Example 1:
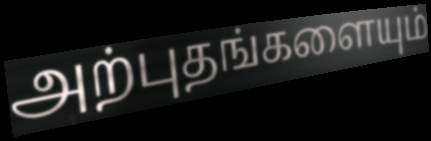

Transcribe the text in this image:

அற்புதங்களையும்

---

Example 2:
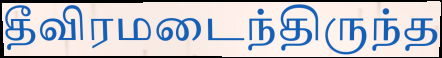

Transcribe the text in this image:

தீவிரமடைந்திருந்த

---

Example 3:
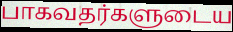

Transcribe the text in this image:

பாகவதர்களுடைய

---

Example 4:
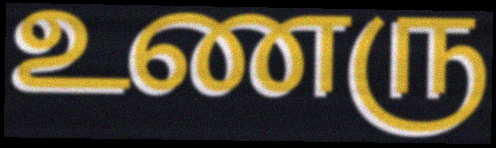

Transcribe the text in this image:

உணரு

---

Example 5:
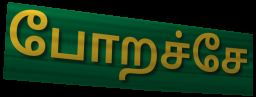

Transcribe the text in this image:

போறச்சே